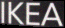
IKEA